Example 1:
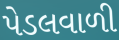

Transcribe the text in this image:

પેડલવાળી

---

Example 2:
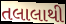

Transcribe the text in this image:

તલાલાથી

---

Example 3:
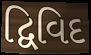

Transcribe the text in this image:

દ્વિવિદ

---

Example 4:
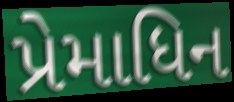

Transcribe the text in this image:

પ્રેમાધિન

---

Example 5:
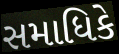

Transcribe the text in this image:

સમાધિકે